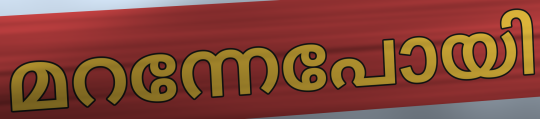
മറന്നേപോയി